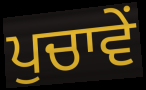
ਪੁਚਾਵੇਂ